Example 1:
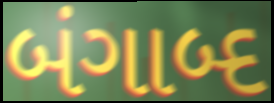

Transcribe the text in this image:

બંગાબ્દ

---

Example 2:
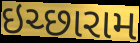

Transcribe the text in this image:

ઇચ્છારામ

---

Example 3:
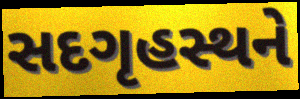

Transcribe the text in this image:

સદગૃહસ્થને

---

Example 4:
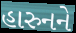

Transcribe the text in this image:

હારુનને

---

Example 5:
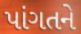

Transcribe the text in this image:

પાંગતને